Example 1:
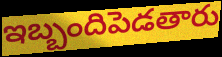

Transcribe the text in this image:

ఇబ్బందిపెడతారు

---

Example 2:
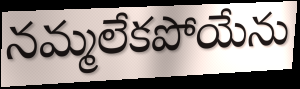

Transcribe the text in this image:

నమ్మలేకపోయేను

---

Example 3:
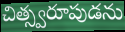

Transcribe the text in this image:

చిత్స్వరూపుడను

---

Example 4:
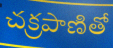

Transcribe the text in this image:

చక్రపాణితో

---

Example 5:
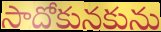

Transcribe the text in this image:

సాదోకునకును